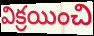
విక్రయించి